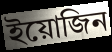
ইয়োজিন